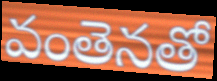
వంతెనతో